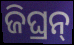
ଜିଘ୍ରନ୍